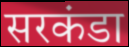
सरकंडा